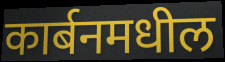
कार्बनमधील